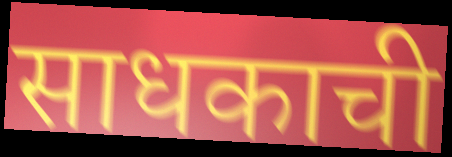
साधकाची